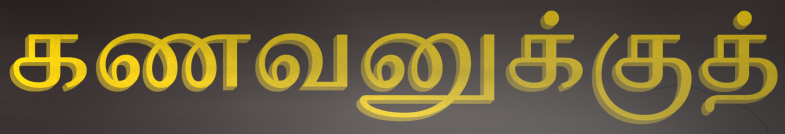
கணவனுக்குத்